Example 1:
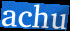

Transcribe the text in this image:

achu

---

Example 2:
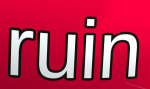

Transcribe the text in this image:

ruin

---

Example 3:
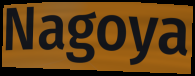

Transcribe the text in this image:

Nagoya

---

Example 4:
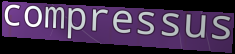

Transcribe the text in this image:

compressus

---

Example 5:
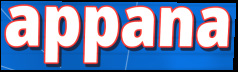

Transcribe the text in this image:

appana